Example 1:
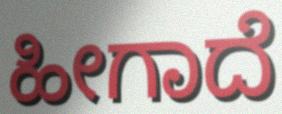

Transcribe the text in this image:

ಹೀಗಾದೆ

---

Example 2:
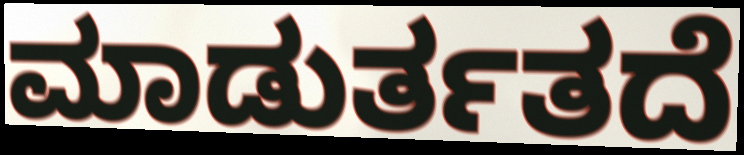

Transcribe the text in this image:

ಮಾಡುರ್ತತದೆ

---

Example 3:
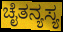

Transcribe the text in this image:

ಚೈತನ್ಯಸ್ಯ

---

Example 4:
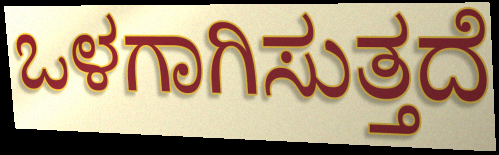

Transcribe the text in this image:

ಒಳಗಾಗಿಸುತ್ತದೆ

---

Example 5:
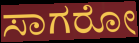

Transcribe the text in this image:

ಸಾಗರೋ